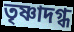
তৃষ্ণাদগ্ধ